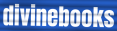
divinebooks